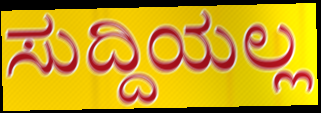
ಸುದ್ದಿಯಲ್ಲ